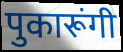
पुकारूंगी